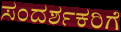
ಸಂದರ್ಶಕರಿಗೆ